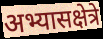
अभ्यासक्षेत्रे